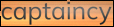
captaincy